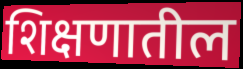
शिक्षणातील